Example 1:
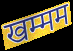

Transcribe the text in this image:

खम्मम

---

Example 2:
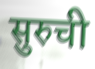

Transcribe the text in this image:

सुरुची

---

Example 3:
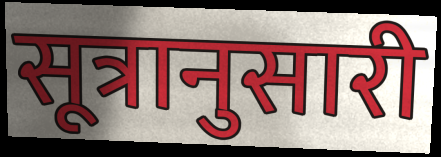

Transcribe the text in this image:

सूत्रानुसारी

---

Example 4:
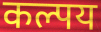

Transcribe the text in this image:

कल्पय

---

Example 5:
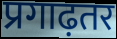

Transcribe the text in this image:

प्रगाढ़तर